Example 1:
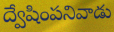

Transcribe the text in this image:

ద్వేషింపనివాడు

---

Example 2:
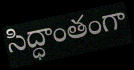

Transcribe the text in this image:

సిద్ధాంతంగా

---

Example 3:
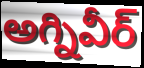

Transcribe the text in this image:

అగ్నివీర్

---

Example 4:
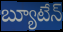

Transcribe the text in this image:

బ్యూటేన్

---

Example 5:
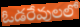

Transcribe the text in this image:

ఓడరేవులలో